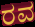
ರವ